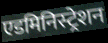
एडमिनिस्‍ट्रेशन